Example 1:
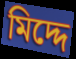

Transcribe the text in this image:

মিদ্দে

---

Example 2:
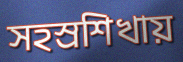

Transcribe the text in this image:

সহস্রশিখায়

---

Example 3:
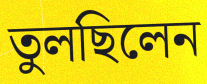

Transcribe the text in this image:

তুলছিলেন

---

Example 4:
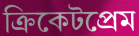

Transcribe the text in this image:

ক্রিকেটপ্রেম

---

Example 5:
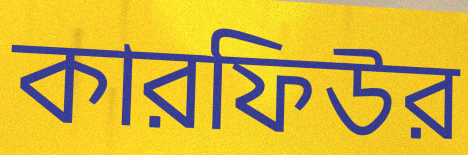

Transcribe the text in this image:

কারফিউর